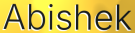
Abishek